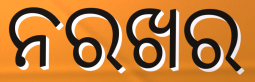
ନରଖର